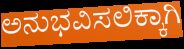
ಅನುಭವಿಸಲಿಕ್ಕಾಗಿ